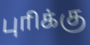
புரிக்கு